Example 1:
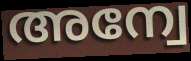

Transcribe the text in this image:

അന്വേ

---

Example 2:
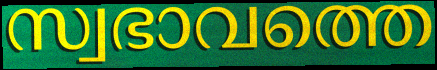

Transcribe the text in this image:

സ്വഭാവത്തെ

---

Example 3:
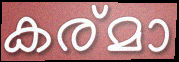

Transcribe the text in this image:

കര്മാ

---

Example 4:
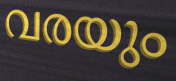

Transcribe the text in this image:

വരയും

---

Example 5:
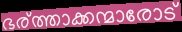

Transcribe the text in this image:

ഭര്ത്താക്കന്മാരോട്